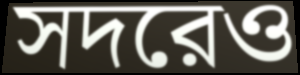
সদরেও